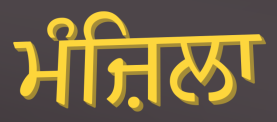
ਮੰਜ਼ਿਲਾ